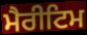
ਮੈਰੀਟਿਮ